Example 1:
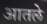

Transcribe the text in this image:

आतले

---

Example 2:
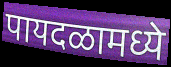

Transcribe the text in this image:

पायदळामध्ये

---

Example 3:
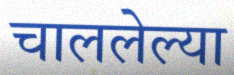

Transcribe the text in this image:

चाललेल्या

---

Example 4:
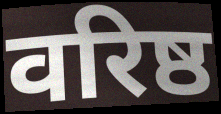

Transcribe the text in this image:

वरिष्ठ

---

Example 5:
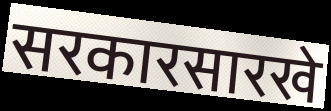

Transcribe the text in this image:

सरकारसारखे